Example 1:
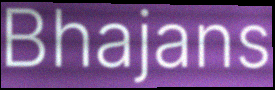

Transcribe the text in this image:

Bhajans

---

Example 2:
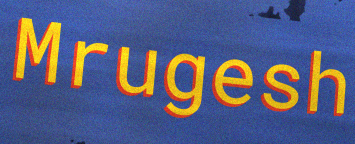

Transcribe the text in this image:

Mrugesh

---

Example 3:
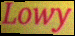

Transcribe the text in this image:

Lowy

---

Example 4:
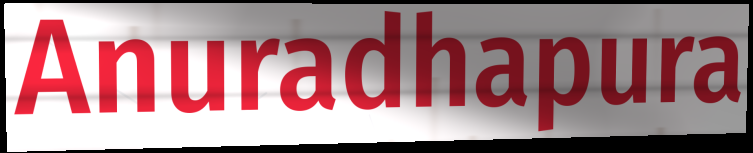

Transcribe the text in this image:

Anuradhapura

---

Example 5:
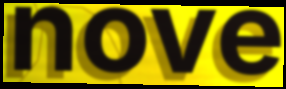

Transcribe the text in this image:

nove